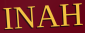
INAH